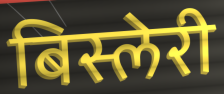
बिस्लेरी